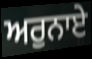
ਅਰੁਨਾਏ